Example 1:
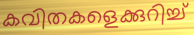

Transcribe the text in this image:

കവിതകളെക്കുറിച്ച്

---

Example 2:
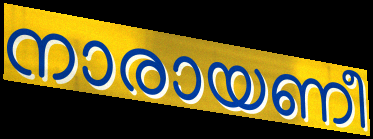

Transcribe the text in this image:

നാരായണീ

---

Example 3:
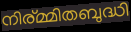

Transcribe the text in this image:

നിര്മ്മിതബുദ്ധി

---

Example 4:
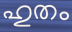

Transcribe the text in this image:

ഹുതം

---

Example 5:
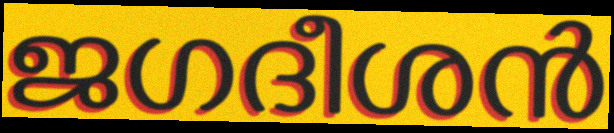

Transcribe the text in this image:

ജഗദീശൻ